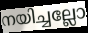
നയിച്ചല്ലോ